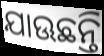
ଯାଊଛନ୍ତି